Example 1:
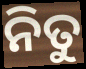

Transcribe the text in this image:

ନିତୁ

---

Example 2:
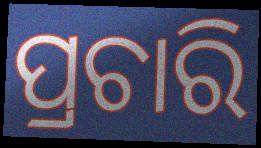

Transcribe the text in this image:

ପ୍ରଚାରି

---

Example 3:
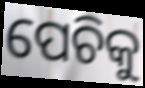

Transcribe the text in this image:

ପେଚିକୁ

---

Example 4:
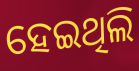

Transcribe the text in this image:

ହେଇଥିଲି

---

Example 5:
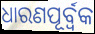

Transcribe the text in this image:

ଧାରଣପୂର୍ବ୍ବକ